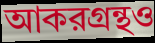
আকরগ্রন্থও